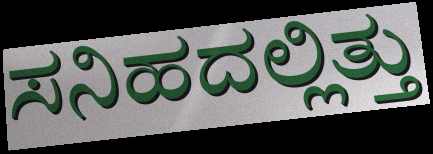
ಸನಿಹದಲ್ಲಿತ್ತು